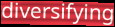
diversifying